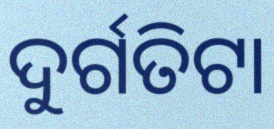
ଦୁର୍ଗତିଟା